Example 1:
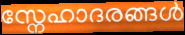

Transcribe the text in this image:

സ്നേഹാദരങ്ങൾ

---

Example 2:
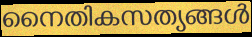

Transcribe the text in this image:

നൈതികസത്യങ്ങൾ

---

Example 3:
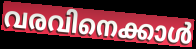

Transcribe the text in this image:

വരവിനെക്കാൾ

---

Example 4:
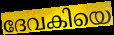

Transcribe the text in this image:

ദേവകിയെ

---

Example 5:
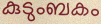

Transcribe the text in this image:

കുടുംബകം